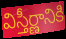
విస్తీర్ణానికి